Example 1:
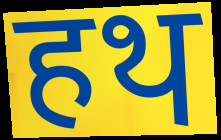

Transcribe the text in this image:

हथ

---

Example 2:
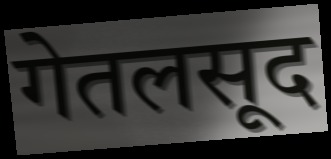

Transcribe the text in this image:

गेतलसूद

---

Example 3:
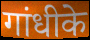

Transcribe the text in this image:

गांधीके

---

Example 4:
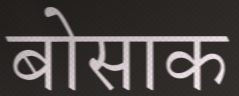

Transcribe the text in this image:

बोसाक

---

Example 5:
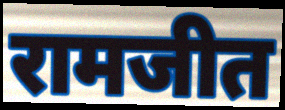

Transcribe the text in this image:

रामजीत